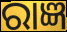
ରାଜ୍ଞ